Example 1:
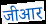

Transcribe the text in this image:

जीआर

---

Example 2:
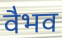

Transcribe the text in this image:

वैभव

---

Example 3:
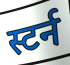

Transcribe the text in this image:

स्टर्न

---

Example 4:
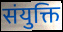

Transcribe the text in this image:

संयुक्ति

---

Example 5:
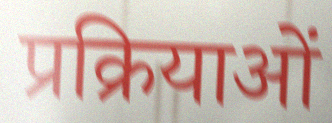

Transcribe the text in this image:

प्रक्रियाओं